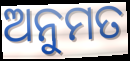
ଅନୁମତ